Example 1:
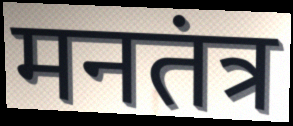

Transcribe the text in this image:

मनतंत्र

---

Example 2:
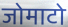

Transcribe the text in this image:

जोमाटो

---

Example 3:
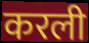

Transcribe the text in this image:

करली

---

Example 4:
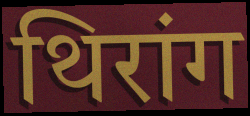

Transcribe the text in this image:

थिरांग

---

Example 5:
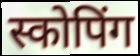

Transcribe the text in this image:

स्कोपिंग